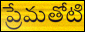
ప్రేమతోటి